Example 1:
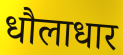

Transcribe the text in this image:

धौलाधार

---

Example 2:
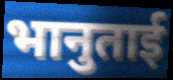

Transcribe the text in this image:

भानुताई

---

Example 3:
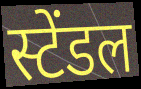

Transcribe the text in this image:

स्टेंडल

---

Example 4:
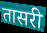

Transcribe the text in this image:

तासरी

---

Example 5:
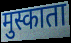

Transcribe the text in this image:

मुस्काता